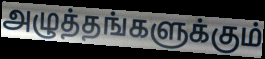
அழுத்தங்களுக்கும்